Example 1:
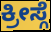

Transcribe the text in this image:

ಕ್ರೀಸ್ಗೆ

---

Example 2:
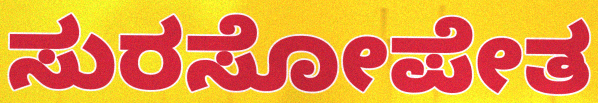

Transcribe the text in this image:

ಸುರಸೋಪೇತ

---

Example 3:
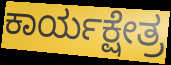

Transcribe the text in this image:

ಕಾರ್ಯಕ್ಷೇತ್ರ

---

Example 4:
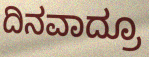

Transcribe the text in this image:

ದಿನವಾದ್ರೂ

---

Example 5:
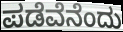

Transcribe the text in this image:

ಪಡೆವೆನೆಂದು